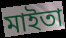
মাইতা